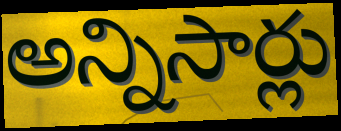
అన్నిసార్లు